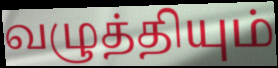
வழுத்தியும்